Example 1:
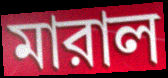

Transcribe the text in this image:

মারাল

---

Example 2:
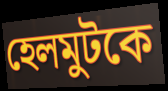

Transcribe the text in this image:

হেলমুটকে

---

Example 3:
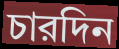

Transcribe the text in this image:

চারদিন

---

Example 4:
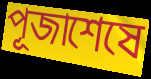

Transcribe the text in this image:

পূজাশেষে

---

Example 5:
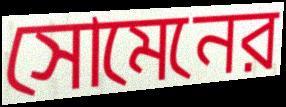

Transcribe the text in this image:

সোমেনের